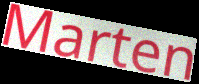
Marten